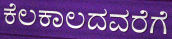
ಕೆಲಕಾಲದವರೆಗೆ